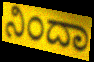
ನಿಂದಾ